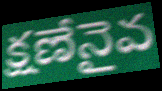
క్షణేనైవ